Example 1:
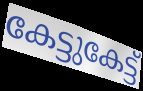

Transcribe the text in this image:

കേട്ടുകേട്ട്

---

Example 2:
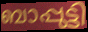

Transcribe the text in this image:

ബാപ്പുട്ടി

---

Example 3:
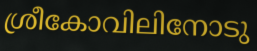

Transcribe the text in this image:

ശ്രീകോവിലിനോടു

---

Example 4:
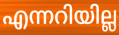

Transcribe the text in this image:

എന്നറിയില്ല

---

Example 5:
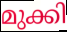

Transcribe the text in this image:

മുക്കി